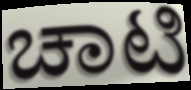
ಚಾಟಿ